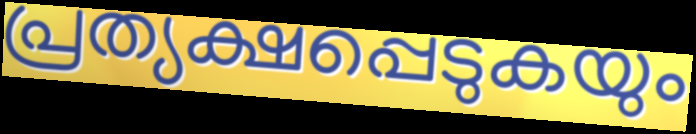
പ്രത്യക്ഷപ്പെടുകയും